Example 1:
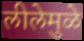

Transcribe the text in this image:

लीलेमुळे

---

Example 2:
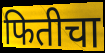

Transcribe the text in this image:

फितीचा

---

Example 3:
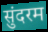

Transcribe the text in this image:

सुंदरम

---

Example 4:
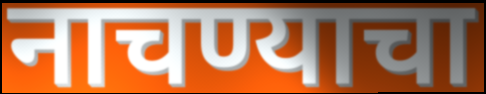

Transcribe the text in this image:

नाचण्याचा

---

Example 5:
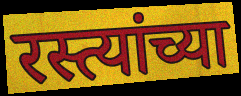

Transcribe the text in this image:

रस्त्यांच्या